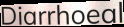
Diarrhoeal